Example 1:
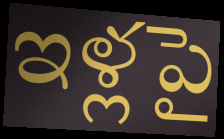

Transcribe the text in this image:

ఇళ్లపై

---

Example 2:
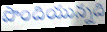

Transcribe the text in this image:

పొందియున్నది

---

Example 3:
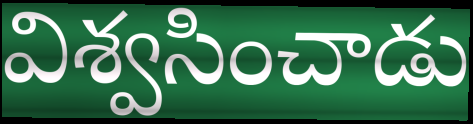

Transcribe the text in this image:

విశ్వసించాడు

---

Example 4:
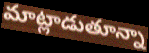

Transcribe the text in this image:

మాట్లాడుతూన్నా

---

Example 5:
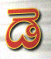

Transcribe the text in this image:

డె